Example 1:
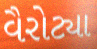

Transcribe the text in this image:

વૈરોટ્યા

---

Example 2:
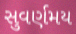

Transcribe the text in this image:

સુવર્ણમય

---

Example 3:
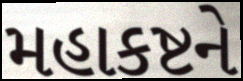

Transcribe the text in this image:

મહાકષ્ટને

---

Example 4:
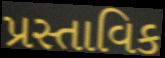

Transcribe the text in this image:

પ્રસ્તાવિક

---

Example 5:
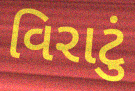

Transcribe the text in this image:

વિરાટું